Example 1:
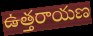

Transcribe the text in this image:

ఉత్తరాయణ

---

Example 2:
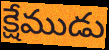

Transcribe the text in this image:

క్షేముడు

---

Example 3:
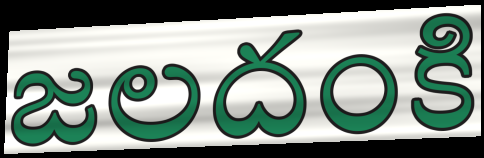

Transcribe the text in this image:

జలదంకి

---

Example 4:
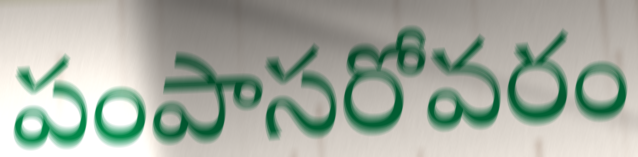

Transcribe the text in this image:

పంపాసరోవరం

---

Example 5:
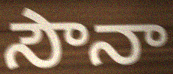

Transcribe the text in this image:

సౌనా